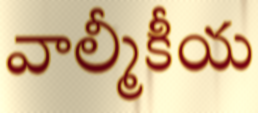
వాల్మీకీయ